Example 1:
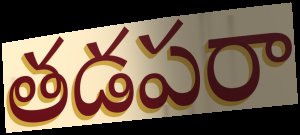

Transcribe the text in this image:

తడపరా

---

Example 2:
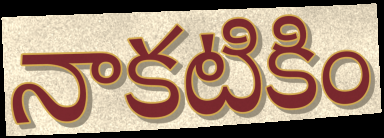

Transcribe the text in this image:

నాకటికిం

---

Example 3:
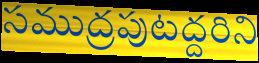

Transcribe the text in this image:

సముద్రపుటద్దరిని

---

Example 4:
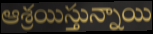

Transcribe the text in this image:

ఆశ్రయిస్తున్నాయి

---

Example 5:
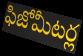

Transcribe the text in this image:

ఫిజోమీటర్ల